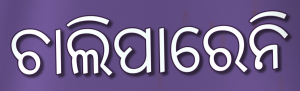
ଚାଲିପାରେନି